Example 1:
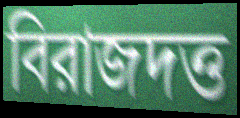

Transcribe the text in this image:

বিরাজদত্ত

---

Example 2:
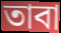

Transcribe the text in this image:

তাবা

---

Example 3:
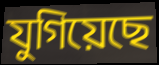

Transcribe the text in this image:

যুগিয়েছে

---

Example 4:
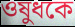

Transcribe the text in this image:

ওষুধকে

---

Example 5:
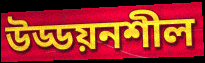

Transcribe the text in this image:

উড্ডয়নশীল